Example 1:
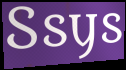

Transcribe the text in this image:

Ssys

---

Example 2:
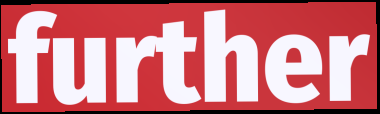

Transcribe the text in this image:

further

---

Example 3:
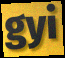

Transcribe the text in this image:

gyi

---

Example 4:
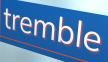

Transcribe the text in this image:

tremble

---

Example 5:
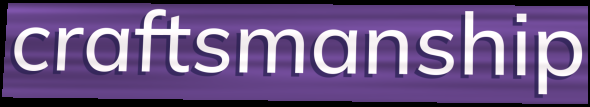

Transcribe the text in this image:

craftsmanship